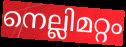
നെല്ലിമറ്റം